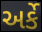
અર્કે